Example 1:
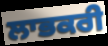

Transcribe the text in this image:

ਲਾਭਕਰੀ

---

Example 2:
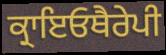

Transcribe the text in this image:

ਕ੍ਰਾਇਓਥੈਰੇਪੀ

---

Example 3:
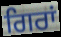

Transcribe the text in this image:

ਗਿਰਾਂ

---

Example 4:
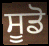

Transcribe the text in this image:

ਸੂਡੋ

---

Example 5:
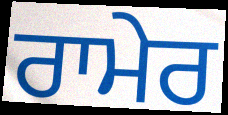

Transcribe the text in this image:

ਰਾਮੇਰ